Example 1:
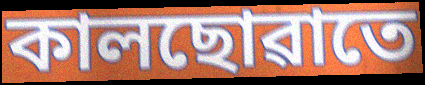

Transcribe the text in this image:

কালছোৱাতে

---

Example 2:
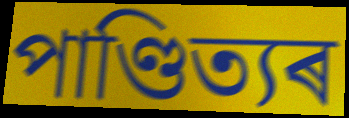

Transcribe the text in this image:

পাণ্ডিত্যৰ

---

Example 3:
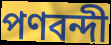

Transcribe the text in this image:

পণবন্দী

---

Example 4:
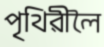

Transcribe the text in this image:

পৃথিৱীলৈ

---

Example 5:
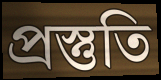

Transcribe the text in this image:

প্ৰস্তুতি